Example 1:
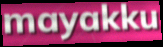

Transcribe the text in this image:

mayakku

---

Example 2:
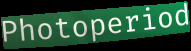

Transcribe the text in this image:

Photoperiod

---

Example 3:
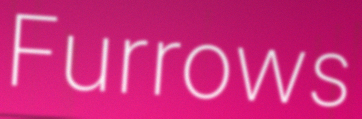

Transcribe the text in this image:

Furrows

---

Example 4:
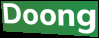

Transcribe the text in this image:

Doong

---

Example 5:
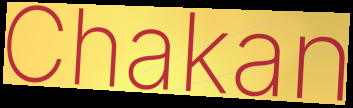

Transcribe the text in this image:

Chakan